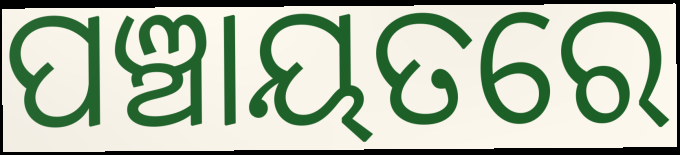
ପଞ୍ଚାୟତରେ